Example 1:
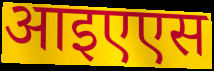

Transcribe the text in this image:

आइएएस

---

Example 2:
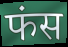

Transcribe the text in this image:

फंस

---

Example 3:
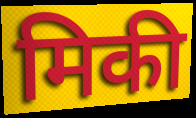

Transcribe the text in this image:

मिकी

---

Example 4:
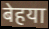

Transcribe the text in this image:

बेहया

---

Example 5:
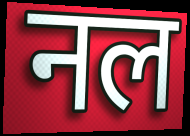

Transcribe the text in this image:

नल